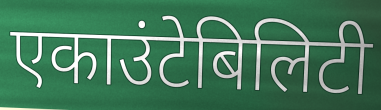
एकाउंटेबिलिटी